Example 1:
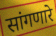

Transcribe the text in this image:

सांगणारे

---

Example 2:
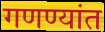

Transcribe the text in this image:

गणण्यांत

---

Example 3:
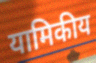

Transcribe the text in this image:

यामिकीय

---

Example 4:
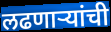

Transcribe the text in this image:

लढणाऱ्यांची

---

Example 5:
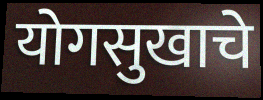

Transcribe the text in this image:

योगसुखाचे